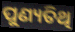
ପୁଣ୍ୟତିଥି